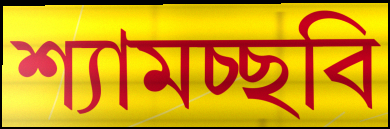
শ্যামচ্ছবি